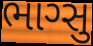
ભાગ્સુ